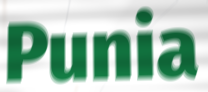
Punia